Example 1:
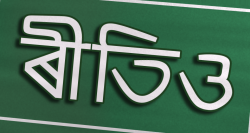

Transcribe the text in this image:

ৰীতিও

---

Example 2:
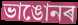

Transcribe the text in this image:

ভাঙোনৰ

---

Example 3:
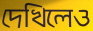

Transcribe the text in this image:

দেখিলেও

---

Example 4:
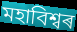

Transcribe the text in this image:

মহাবিশ্বৰ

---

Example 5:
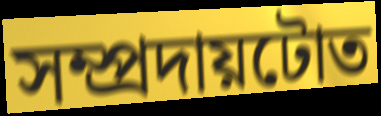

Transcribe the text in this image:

সম্প্ৰদায়টোত